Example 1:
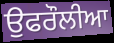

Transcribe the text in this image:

ਉਫਰੌਲੀਆ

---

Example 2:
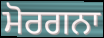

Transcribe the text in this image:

ਮੋਰਗਨਾ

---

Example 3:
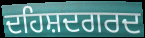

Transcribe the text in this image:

ਦਹਿਸ਼ਦਗਰਦ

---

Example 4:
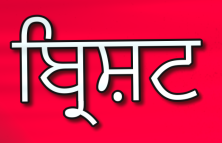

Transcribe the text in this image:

ਬ੍ਰਿਸ਼ਟ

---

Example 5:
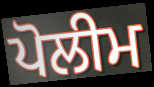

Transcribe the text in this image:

ਪੋਲੀਮ